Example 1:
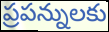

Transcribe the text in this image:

ప్రపన్నులకు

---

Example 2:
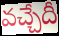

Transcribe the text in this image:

వచ్చేదీ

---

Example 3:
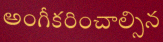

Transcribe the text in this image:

అంగీకరించాల్సిన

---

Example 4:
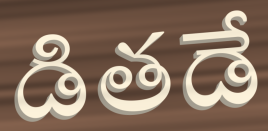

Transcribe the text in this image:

డితడే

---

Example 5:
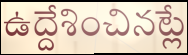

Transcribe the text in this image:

ఉద్దేశించినట్లే